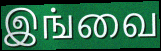
இங்வை